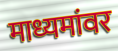
माध्यमांवर